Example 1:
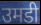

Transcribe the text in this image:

उमडी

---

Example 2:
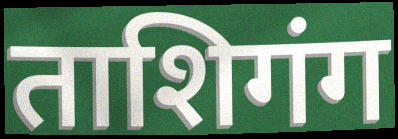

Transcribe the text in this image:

ताशिगंग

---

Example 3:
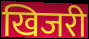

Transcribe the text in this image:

खिजरी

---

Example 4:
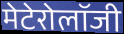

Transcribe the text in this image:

मेटेरोलॉजी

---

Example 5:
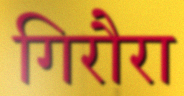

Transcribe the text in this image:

गिरौरा